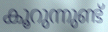
കൂറുന്നുണ്ട്